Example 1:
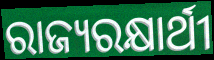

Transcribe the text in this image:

ରାଜ୍ୟରକ୍ଷାର୍ଥୀ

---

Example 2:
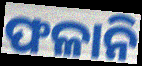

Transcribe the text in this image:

ଫଳାନି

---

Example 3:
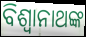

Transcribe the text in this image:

ବିଶ୍ୱାନାଥଙ୍କ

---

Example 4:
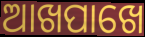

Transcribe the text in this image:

ଆଖପାଖେ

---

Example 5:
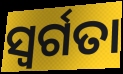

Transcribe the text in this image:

ସ୍ବର୍ଗତା